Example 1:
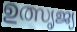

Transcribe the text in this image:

ഉത്സൃജ്യ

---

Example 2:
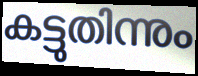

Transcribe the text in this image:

കട്ടുതിന്നും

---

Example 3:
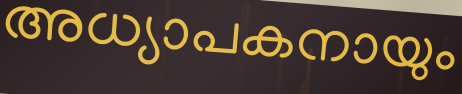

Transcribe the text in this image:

അധ്യാപകനായും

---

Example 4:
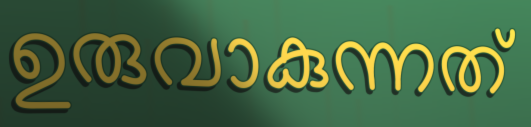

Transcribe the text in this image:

ഉരുവാകുന്നത്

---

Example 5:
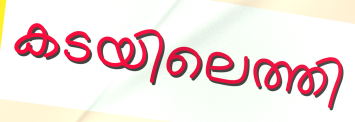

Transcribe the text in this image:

കടയിലെത്തി